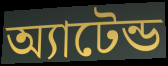
অ্যাটেন্ড